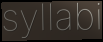
syllabi